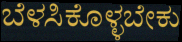
ಬೆಳಸಿಕೊಳ್ಳಬೇಕು